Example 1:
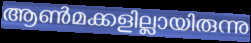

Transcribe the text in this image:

ആൺമക്കളില്ലായിരുന്നു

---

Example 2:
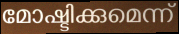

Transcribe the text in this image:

മോഷ്ടിക്കുമെന്ന്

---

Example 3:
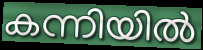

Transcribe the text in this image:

കന്നിയിൽ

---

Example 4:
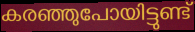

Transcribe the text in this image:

കരഞ്ഞുപോയിട്ടുണ്ട്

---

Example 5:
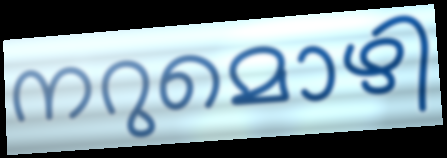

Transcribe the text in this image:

നറുമൊഴി